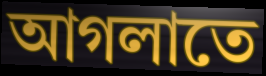
আগলাতে